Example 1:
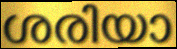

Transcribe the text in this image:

ശരിയാ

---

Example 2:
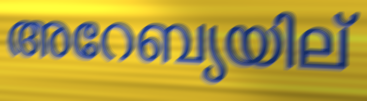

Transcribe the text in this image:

അറേബ്യയില്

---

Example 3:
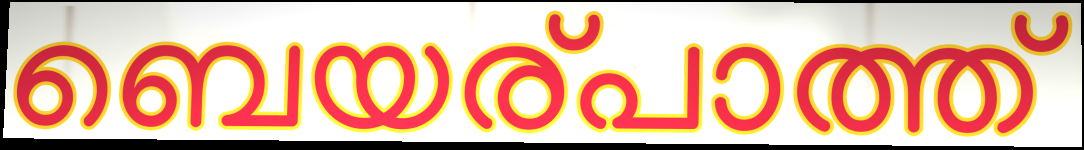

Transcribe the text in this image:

ബെയര്പാത്ത്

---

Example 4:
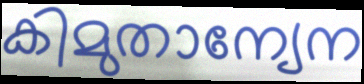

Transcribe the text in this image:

കിമുതാന്യേന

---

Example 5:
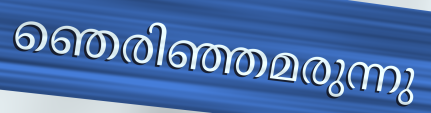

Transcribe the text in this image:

ഞെരിഞ്ഞമരുന്നു